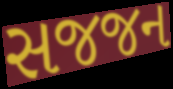
સજજન